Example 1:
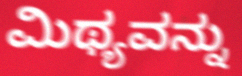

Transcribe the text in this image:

ಮಿಥ್ಯವನ್ನು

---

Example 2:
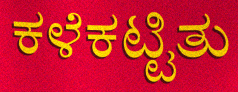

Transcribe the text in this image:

ಕಳೆಕಟ್ಟಿತು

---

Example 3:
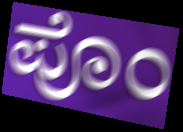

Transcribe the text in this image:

ಪೊಂ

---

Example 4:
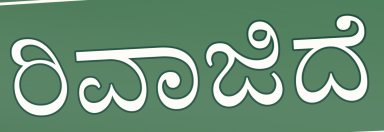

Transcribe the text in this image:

ರಿವಾಜಿದೆ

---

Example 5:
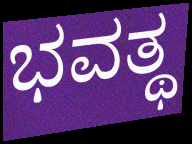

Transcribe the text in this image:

ಭವತ್ಥ